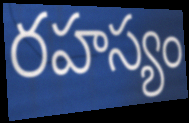
రహస్యం